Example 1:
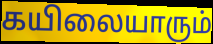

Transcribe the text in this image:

கயிலையாரும்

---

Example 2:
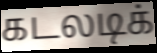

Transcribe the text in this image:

கடலடிக்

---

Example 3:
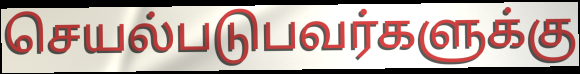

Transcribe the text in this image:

செயல்படுபவர்களுக்கு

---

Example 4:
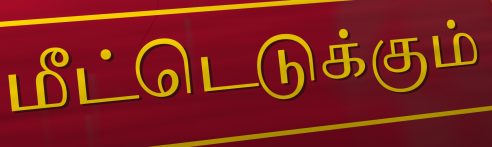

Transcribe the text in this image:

மீட்டெடுக்கும்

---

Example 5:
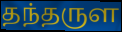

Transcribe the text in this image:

தந்தருள